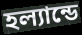
হল্যান্ডে